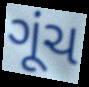
ગૂંચ